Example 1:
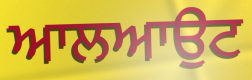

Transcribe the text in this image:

ਆਲਆਉਟ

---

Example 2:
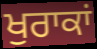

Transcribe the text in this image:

ਖੁਰਾਕਾਂ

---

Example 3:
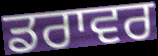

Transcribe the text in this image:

ਡਰਾਵਰ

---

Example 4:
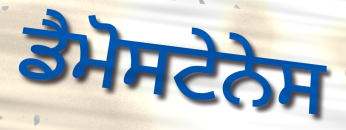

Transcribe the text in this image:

ਡੈਮੋਸਟੇਨੇਸ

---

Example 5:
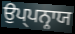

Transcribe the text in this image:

ਉਪ੍ਪਨ੍ਨਾਯ